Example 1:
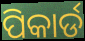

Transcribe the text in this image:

ପିକାର୍ଡ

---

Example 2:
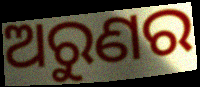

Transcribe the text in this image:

ଅରୁଣର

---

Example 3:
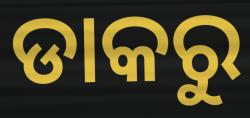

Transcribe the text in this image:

ଡାକରୁ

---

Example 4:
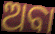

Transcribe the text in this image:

ଅବା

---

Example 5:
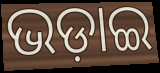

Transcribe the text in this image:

ଭଡ଼ାଇ